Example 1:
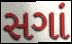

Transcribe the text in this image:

સગાં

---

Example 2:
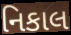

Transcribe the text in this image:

નિકાલ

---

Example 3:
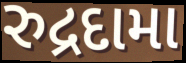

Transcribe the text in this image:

રુદ્રદામા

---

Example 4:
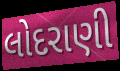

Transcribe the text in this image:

લોદરાણી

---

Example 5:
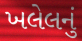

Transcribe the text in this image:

ખલેલનું